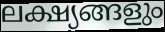
ലക്ഷ്യങ്ങളും